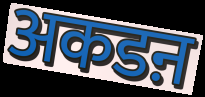
अकडऩ